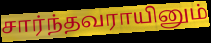
சார்ந்தவராயினும்